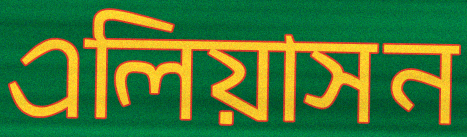
এলিয়াসন